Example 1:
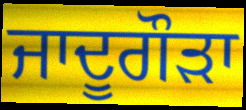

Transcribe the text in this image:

ਜਾਦੂਗੌੜਾ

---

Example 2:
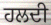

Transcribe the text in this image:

ਹਲਦੀ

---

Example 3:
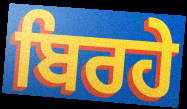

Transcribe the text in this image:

ਬਿਰਹੇ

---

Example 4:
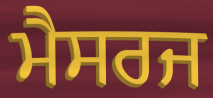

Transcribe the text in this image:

ਮੈਸਰਜ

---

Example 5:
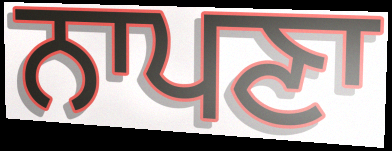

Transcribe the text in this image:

ਨਾਪਣਾ